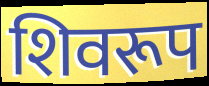
शिवरूप